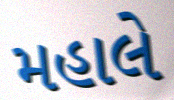
મહાલે